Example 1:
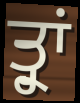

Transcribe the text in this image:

ਤ੍ਰ੍ਹਾਂ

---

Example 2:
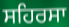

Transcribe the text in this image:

ਸਹਿਰਸਾ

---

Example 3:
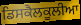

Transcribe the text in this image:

ਡਿਸਕੈਲਕੂਲੀਆ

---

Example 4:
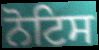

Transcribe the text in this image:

ਨੋਟਿਸ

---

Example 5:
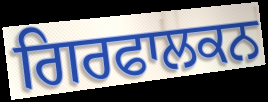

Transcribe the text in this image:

ਗਿਰਫਾਲਕਨ